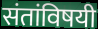
संतांविषयी